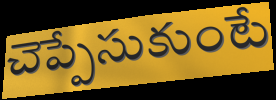
చెప్పేసుకుంటే